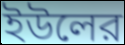
ইউলের